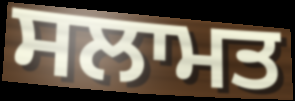
ਸਲਾਮਤ